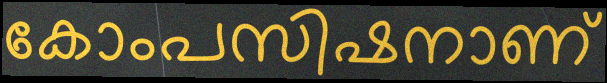
കോംപസിഷനാണ്